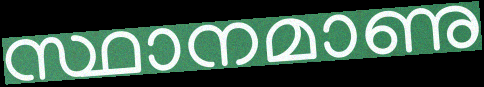
സ്ഥാനമാണു